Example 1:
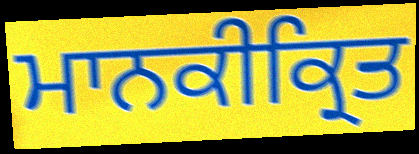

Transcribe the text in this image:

ਮਾਨਕੀਕ੍ਰਿਤ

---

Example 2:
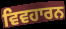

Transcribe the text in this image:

ਵਿਵਹਾਰਨ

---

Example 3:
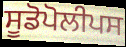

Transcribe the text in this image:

ਸੂਡੋਪੋਲੀਪਸ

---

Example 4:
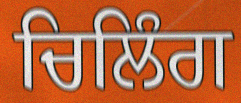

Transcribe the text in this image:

ਚਿਲਿੰਗ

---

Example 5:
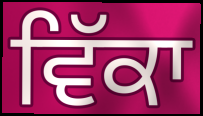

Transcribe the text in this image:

ਵਿੱਕਾ